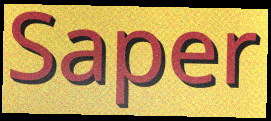
Saper